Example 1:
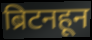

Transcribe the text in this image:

ब्रिटनहून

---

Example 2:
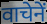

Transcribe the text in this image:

वाचेनें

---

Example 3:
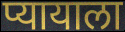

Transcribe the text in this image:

प्यायाला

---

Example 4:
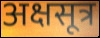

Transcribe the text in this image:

अक्षसूत्र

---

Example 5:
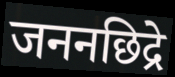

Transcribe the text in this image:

जननछिद्रे